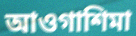
আওগাশিমা